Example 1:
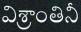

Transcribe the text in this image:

విశ్రాంతినీ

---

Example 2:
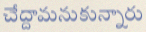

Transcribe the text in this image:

చేద్దామనుకున్నారు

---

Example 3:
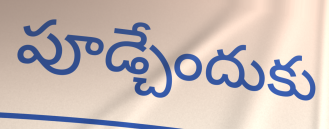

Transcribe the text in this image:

పూడ్చేందుకు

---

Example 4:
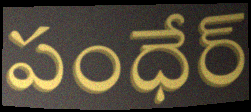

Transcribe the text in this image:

పంధేర్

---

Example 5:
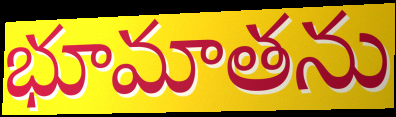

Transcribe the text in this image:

భూమాతను